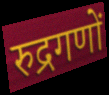
रुद्रगणों